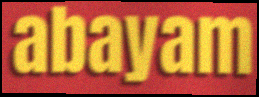
abayam